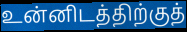
உன்னிடத்திற்குத்